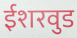
ईशरवुड